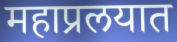
महाप्रलयात